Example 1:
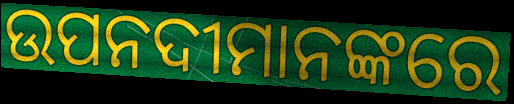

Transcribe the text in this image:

ଉପନଦୀମାନଙ୍କରେ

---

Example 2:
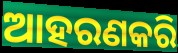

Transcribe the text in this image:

ଆହରଣକରି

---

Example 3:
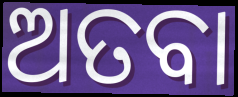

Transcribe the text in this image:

ଅତବା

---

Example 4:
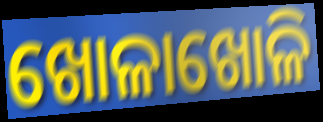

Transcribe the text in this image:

ଖୋଳାଖୋଳି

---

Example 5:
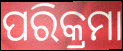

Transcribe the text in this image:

ପରିକ୍ରମା